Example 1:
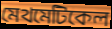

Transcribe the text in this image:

মেথমেটিকেল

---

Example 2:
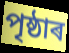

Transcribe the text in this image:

পৃষ্ঠাৰ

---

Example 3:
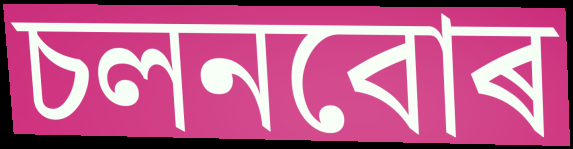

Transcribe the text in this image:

চলনবোৰ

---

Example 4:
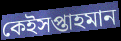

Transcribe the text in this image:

কেইসপ্তাহমান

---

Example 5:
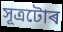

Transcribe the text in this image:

সূত্ৰটোৰ